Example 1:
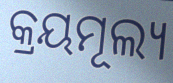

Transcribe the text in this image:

କ୍ରୟମୂଲ୍ୟ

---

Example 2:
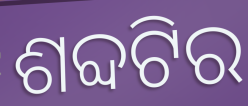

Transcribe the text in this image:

ଶବ୍ଦଟିର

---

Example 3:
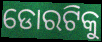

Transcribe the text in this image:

ଡୋରଟିକୁ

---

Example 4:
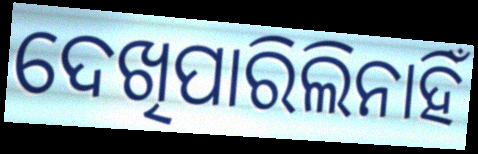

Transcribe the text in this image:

ଦେଖିପାରିଲିନାହିଁ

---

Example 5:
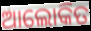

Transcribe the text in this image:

ଆଲୋକିତ